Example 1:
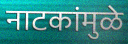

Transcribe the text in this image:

नाटकांमुळे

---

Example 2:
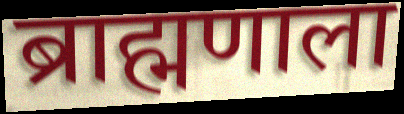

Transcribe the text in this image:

ब्राह्मणाला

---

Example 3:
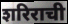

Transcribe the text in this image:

शरिराची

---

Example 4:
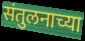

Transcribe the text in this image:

संतुलनाच्या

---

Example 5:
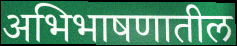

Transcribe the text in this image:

अभिभाषणातील